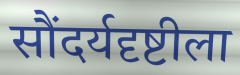
सौंदर्यदृष्टीला